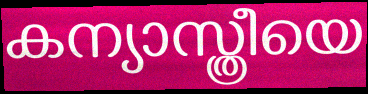
കന്യാസ്ത്രീയെ